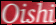
Oishi